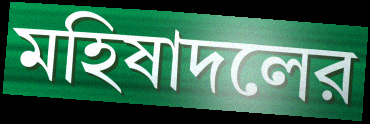
মহিষাদলের